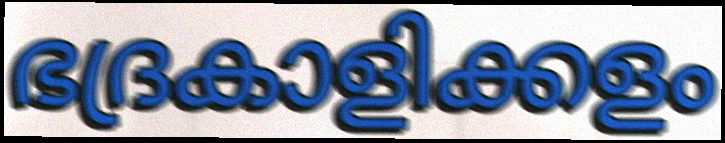
ഭദ്രകാളിക്കളം